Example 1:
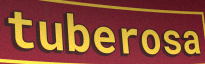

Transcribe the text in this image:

tuberosa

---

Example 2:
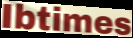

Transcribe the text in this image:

Ibtimes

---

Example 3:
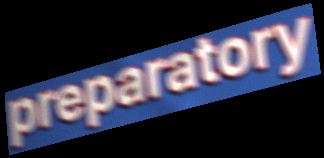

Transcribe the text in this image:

preparatory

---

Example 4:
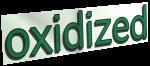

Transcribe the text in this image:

oxidized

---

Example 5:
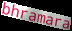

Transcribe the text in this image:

bhramara